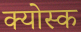
क्योस्क